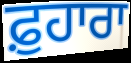
ਫ਼ੁਹਾਰਾ